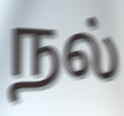
நல்